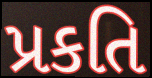
પ્રકતિ